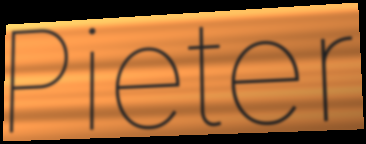
Pieter